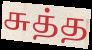
சுத்த